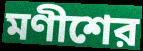
মণীশের